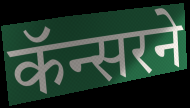
कॅन्सरने